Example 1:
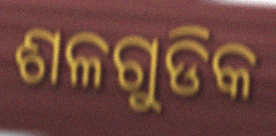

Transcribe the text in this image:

ଶଳଗୁଡିକ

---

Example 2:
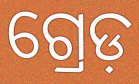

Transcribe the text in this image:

ଗ୍ରେଡ଼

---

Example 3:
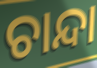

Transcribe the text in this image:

ଚାନ୍ଦା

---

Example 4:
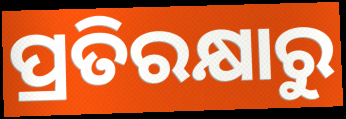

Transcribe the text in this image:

ପ୍ରତିରକ୍ଷାରୁ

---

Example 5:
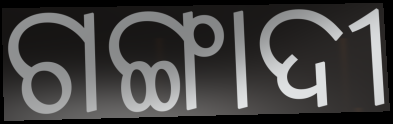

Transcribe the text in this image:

ଗଙ୍ଗାଦୀ